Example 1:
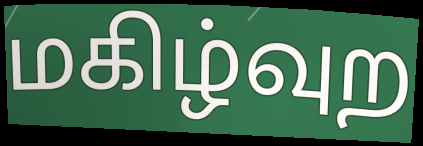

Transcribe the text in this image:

மகிழ்வுற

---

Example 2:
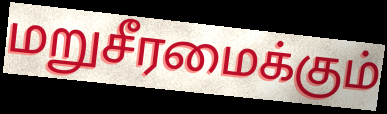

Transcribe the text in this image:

மறுசீரமைக்கும்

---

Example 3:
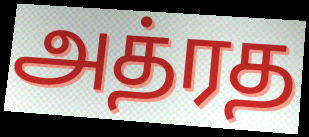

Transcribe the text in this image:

அத்ரத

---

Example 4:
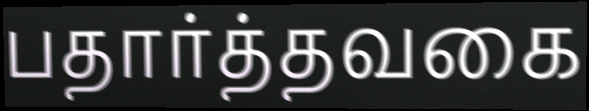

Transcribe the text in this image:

பதார்த்தவகை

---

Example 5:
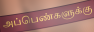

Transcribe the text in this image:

அப்பெண்களுக்கு